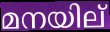
മനയില്